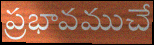
ప్రభావముచే